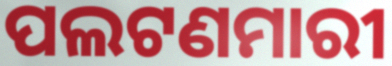
ପଲଟଣମାରୀ